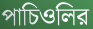
পাচিওলির